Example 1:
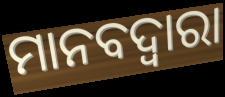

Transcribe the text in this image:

ମାନବଦ୍ୱାରା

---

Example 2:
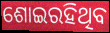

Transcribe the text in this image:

ଶୋଇରହିଥିବ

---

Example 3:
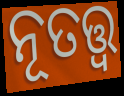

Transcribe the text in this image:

ନୂତତ୍ତ୍ବ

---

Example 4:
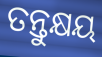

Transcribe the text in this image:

ତନ୍ତୁକ୍ଷୟ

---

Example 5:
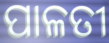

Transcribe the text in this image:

ପାଳତୀ